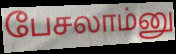
பேசலாம்னு